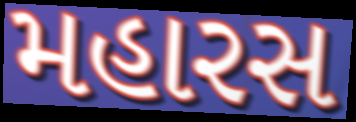
મહારસ